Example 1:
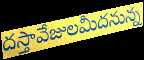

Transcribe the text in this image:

దస్తావేజులమీదనున్న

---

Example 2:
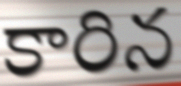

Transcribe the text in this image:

కారిన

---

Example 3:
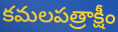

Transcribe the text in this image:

కమలపత్రాక్షీం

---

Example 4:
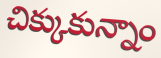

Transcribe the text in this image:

చిక్కుకున్నాం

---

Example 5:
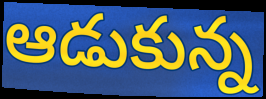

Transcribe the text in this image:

ఆడుకున్న